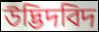
উদ্ভিদবিদ